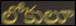
లోకులూ